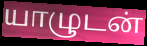
யாழுடன்